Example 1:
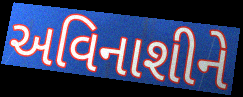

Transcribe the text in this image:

અવિનાશીને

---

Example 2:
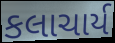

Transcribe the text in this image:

કલાચાર્ય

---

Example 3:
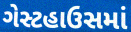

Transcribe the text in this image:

ગેસ્ટહાઉસમાં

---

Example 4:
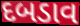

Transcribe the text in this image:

દબડાવ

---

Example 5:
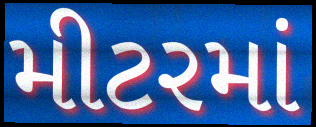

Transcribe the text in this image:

મીટરમાં